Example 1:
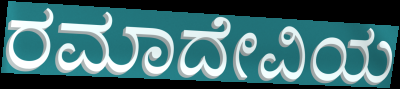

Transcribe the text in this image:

ರಮಾದೇವಿಯ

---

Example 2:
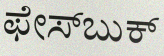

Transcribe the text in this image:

ಫೇಸ್‍ಬುಕ್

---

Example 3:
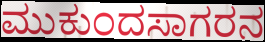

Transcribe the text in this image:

ಮುಕುಂದಸಾಗರನ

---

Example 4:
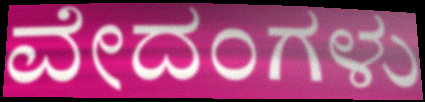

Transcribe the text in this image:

ವೇದಂಗಳು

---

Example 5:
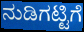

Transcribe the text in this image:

ನುಡಿಗಟ್ಟಿಗೆ